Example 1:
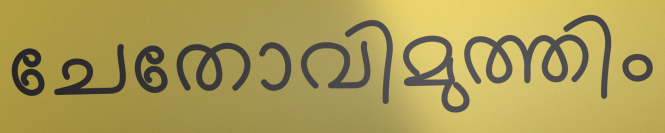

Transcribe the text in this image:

ചേതോവിമുത്തിം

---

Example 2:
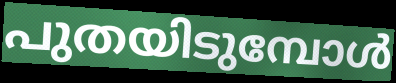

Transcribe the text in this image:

പുതയിടുമ്പോൾ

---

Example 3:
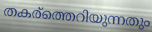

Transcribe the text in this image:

തകര്ത്തെറിയുന്നതും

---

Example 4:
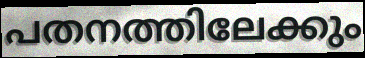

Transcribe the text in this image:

പതനത്തിലേക്കും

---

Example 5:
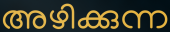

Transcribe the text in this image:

അഴിക്കുന്ന